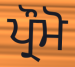
ਪ੍ਰੌਮੋ